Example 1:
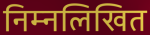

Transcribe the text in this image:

निम्नलिखित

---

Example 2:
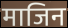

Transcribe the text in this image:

माजिन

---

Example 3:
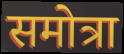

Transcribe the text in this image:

समोत्रा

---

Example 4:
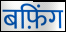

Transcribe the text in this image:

बफ़िंग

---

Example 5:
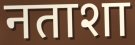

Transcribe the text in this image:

नताशा